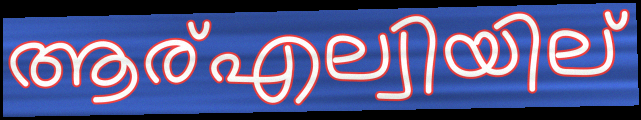
ആര്എല്വിയില്